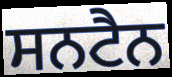
ਸਨਟੈਨ